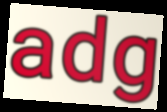
adg